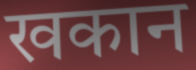
खकान